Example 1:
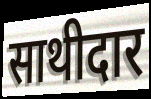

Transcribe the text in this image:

साथीदार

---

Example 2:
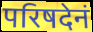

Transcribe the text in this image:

परिषदेनं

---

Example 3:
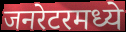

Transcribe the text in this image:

जनरेटरमध्ये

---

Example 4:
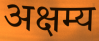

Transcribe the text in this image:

अक्षम्य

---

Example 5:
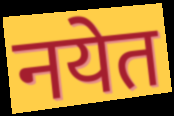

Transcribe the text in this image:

नयेत